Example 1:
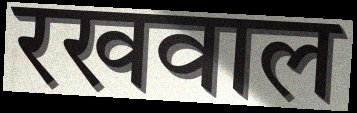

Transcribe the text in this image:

रखवाल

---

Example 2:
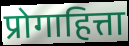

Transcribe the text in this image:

प्रोगाहित्ता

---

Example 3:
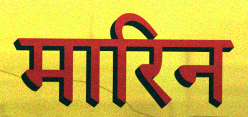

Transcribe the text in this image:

मारिन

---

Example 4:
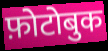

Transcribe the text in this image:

फ़ोटोबुक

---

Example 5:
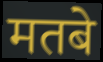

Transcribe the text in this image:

मतबे